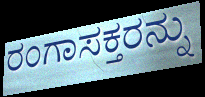
ರಂಗಾಸಕ್ತರನ್ನು